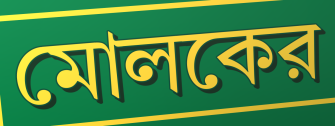
মোলকের